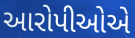
આરોપીઓએ